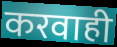
करवाही